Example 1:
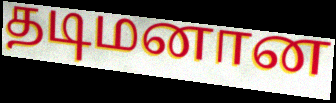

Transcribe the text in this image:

தடிமனான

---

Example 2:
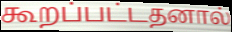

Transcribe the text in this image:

கூறப்பட்டதனால்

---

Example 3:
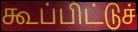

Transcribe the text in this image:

கூப்பிட்டுச்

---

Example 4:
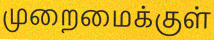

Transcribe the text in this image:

முறைமைக்குள்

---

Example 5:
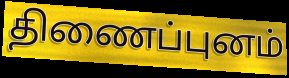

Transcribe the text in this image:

திணைப்புனம்